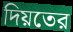
দিয়তের